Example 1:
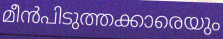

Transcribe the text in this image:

മീൻപിടുത്തക്കാരെയും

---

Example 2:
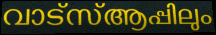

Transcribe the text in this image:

വാട്സ്ആപ്പിലും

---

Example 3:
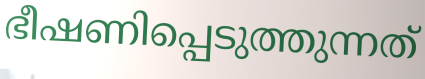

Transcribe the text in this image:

ഭീഷണിപ്പെടുത്തുന്നത്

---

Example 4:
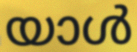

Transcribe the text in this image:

യാൾ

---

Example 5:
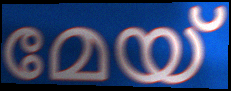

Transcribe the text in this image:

മേയ്